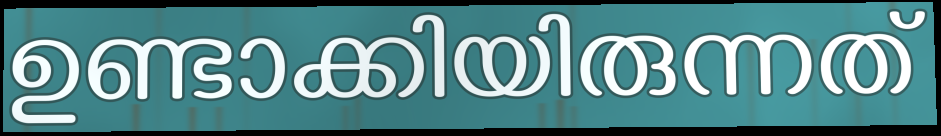
ഉണ്ടാക്കിയിരുന്നത്